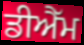
ਡੀਐੱਮ